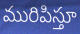
మురిపిస్తూ